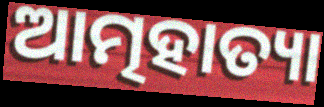
ଆତ୍ମହାତ୍ୟା